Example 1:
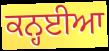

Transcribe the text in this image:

ਕਨ੍ਹਈਆ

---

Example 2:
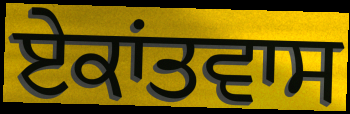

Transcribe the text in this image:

ਏਕਾਂਤਵਾਸ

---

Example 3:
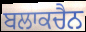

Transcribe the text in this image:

ਬਲਾਕਚੈਨ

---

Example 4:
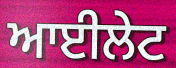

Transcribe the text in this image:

ਆਈਲੇਟ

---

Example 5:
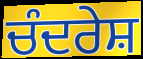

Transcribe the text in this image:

ਚੰਦਰੇਸ਼